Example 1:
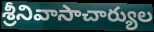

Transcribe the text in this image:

శ్రీనివాసాచార్యుల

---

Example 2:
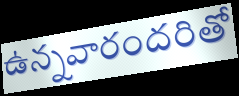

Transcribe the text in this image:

ఉన్నవారందరితో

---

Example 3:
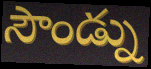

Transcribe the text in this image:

సౌండ్ను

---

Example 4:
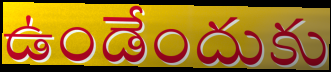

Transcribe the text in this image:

ఉండేందుకు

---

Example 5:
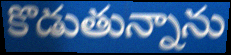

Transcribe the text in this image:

కొడుతున్నాను